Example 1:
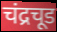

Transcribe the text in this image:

चंद्रचूड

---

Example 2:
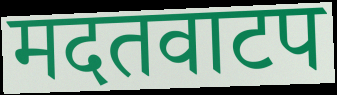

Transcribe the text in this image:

मदतवाटप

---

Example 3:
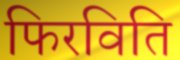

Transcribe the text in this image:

फिरविति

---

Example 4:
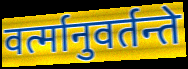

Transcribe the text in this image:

वर्त्मानुवर्तन्ते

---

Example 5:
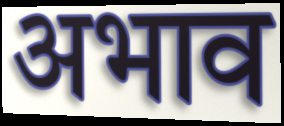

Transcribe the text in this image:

अभाव